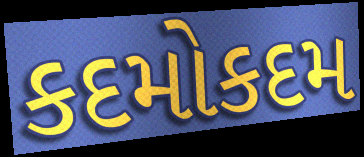
કદમોકદમ